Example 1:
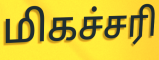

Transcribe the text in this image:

மிகச்சரி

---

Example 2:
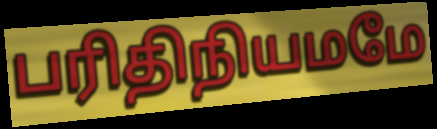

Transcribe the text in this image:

பரிதிநியமமே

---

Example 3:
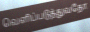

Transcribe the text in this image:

வெளிப்படுத்துவதோ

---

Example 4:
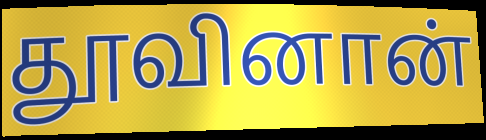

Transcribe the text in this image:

தூவினான்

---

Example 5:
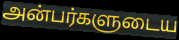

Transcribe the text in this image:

அன்பர்களுடைய